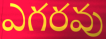
ఎగరవు